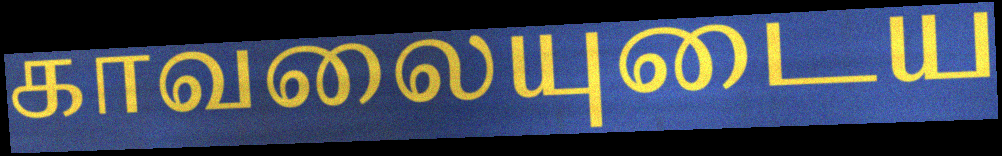
காவலையுடைய